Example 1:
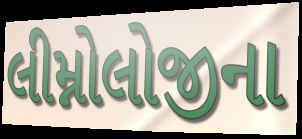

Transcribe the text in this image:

લીમ્નોલોજીના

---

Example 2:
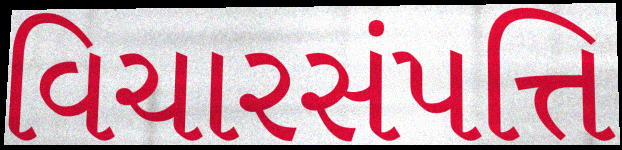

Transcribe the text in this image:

વિચારસંપત્તિ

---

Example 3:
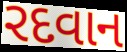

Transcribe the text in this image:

રદવાન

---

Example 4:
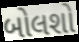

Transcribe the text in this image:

બોલશો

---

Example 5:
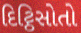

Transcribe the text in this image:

દિટ્ઠિસોતો